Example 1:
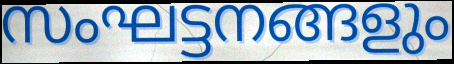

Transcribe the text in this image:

സംഘട്ടനങ്ങളും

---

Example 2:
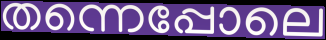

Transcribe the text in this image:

തന്നെപ്പോലെ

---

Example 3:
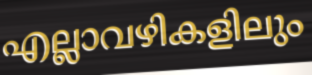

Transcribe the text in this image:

എല്ലാവഴികളിലും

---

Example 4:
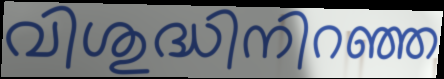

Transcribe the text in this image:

വിശുദ്ധിനിറഞ്ഞ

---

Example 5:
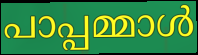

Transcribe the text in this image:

പാപ്പമ്മാൾ